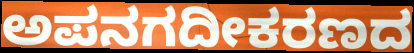
ಅಪನಗದೀಕರಣದ